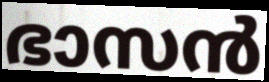
ഭാസൻ